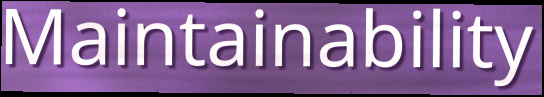
Maintainability